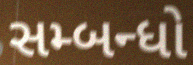
સમ્બન્ધો